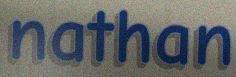
nathan